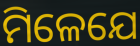
ମିଳେଯେ